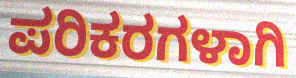
ಪರಿಕರಗಳಾಗಿ